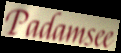
Padamsee